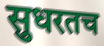
सुधरतच